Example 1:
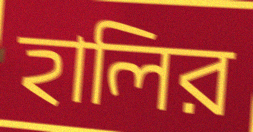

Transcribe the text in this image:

হালির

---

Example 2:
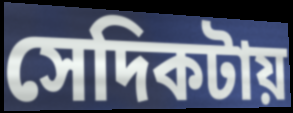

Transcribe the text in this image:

সেদিকটায়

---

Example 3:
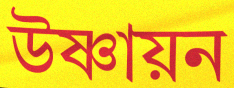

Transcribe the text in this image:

উষ্ণায়ন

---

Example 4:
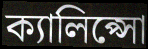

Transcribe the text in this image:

ক্যালিপ্সো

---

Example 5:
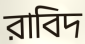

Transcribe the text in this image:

রাবিদ